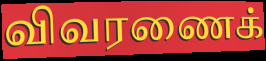
விவரணைக்